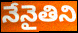
నేనైతిని